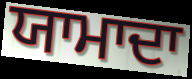
ਯਾਮਾਦਾ